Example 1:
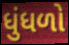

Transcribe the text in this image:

ધુંધળો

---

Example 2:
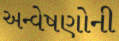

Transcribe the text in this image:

અન્વેષણોની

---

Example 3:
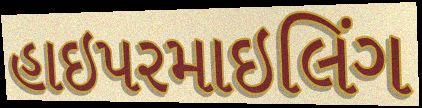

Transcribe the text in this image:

હાઇપરમાઇલિંગ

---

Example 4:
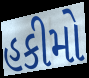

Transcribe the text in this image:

હકીમો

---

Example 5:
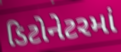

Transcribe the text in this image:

ડિટોનેટરમાં